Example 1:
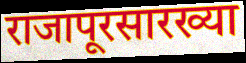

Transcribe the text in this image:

राजापूरसारख्या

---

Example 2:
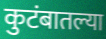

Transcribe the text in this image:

कुटंबातल्या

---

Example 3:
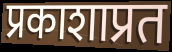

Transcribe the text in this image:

प्रकाशाप्रत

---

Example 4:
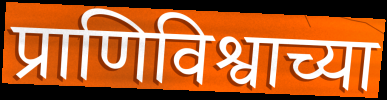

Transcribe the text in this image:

प्राणिविश्वाच्या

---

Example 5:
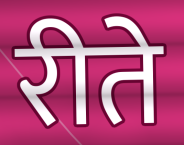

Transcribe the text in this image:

रीते